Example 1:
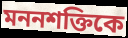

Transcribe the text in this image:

মননশক্তিকে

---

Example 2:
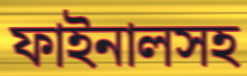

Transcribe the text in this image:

ফাইনালসহ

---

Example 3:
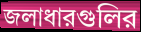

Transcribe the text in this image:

জলাধারগুলির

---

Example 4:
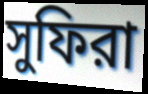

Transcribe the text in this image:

সুফিরা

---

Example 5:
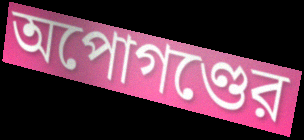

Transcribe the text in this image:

অপোগণ্ডের